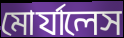
মোর্যালেস